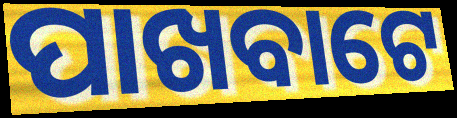
ପାଖବାଟେ